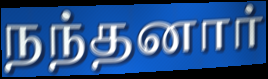
நந்தனார்